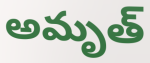
అమృత్